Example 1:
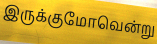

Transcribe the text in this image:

இருக்குமோவென்று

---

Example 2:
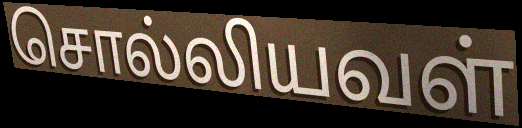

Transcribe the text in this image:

சொல்லியவள்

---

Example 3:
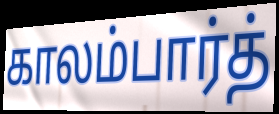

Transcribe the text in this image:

காலம்பார்த்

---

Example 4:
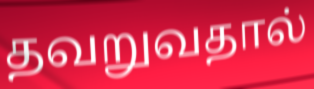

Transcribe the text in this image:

தவறுவதால்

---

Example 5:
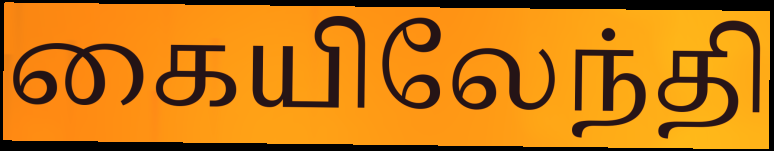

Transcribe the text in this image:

கையிலேந்தி